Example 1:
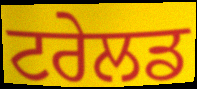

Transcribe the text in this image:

ਟਰੇਲਡ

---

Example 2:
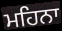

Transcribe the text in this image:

ਮਹਿਨਾ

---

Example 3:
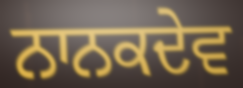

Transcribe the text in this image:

ਨਾਨਕਦੇਵ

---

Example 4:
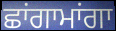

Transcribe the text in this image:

ਛਾਂਗਾਮਾਂਗਾ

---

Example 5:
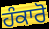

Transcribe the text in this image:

ਹੰਕਾਰੋ